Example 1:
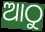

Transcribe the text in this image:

ଆଠୁ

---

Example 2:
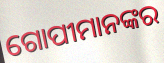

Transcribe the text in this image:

ଗୋପୀମାନଙ୍କର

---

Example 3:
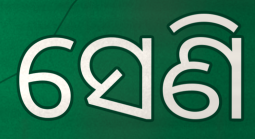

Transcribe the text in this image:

ସେଣି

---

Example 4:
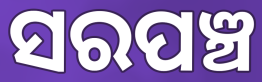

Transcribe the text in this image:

ସରପଞ୍ଚ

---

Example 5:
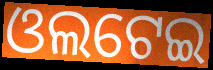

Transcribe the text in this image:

ଓଲଟେଇ